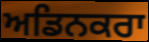
ਅਡਿਨਕਰਾ